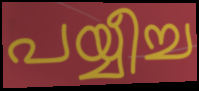
പയ്യീച്ച